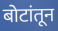
बोटांतून